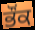
ਭੌਂਕ